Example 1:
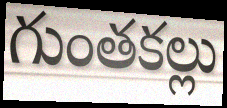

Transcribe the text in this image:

గుంతకల్లు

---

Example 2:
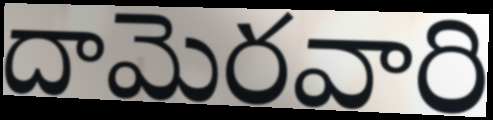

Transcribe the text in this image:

దామెరవారి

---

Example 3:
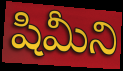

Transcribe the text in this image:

షిమీని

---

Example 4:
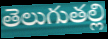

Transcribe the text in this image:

తెలుగుతల్లి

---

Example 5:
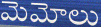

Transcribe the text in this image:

మెమోలు